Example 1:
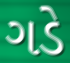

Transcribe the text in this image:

ગડે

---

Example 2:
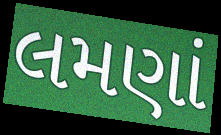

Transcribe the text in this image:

લમણાં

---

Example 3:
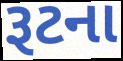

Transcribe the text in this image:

રૂટના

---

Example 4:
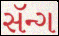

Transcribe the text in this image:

સૅન્ગ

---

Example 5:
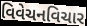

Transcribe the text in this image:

વિવેચનવિચાર